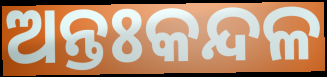
ଅନ୍ତଃକନ୍ଦଳ